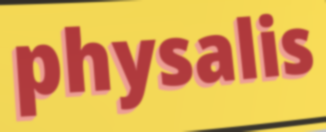
physalis